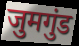
जुमगुंड